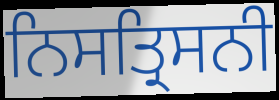
ਨਿਸਤ੍ਰਿਸਨੀ